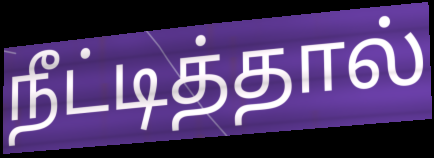
நீட்டித்தால்